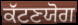
ਕੱਟਣਯੋਗ